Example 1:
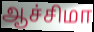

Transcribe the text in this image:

ஆச்சிமா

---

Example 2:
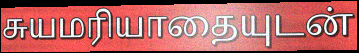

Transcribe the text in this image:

சுயமரியாதையுடன்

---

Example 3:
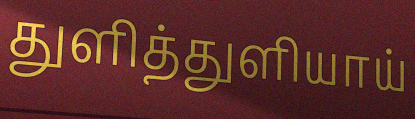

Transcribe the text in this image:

துளித்துளியாய்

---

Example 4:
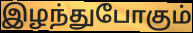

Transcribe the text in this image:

இழந்துபோகும்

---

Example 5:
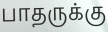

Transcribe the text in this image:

பாதருக்கு